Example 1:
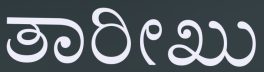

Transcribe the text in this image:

ತಾರೀಖು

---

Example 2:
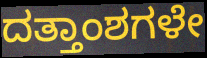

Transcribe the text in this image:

ದತ್ತಾಂಶಗಳೇ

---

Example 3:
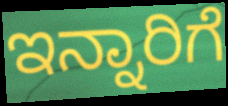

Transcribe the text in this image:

ಇನ್ನಾರಿಗೆ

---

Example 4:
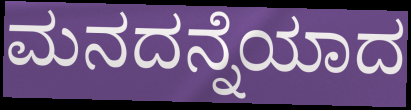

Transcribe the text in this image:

ಮನದನ್ನೆಯಾದ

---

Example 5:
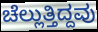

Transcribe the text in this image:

ಚೆಲ್ಲುತ್ತಿದ್ದವು